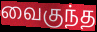
வைகுந்த